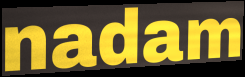
nadam